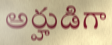
అర్హుడిగా